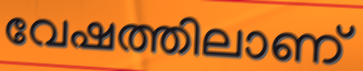
വേഷത്തിലാണ്